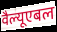
वैल्यूएबल